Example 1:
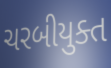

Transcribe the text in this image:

ચરબીયુક્ત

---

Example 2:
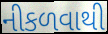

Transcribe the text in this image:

નીકળવાથી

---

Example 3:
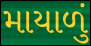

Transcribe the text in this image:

માયાળું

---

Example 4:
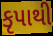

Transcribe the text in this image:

કૃપાથી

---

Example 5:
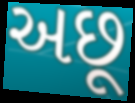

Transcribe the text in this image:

અછૂ